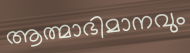
ആത്മാഭിമാനവും